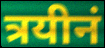
त्रयीनं